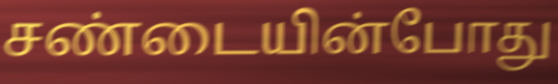
சண்டையின்போது